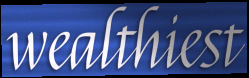
wealthiest